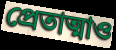
প্রেতাত্মাও